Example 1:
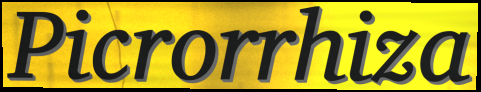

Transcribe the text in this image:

Picrorrhiza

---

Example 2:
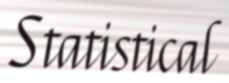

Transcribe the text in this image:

Statistical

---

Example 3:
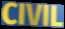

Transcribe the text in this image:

CIVIL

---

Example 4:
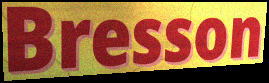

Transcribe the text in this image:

Bresson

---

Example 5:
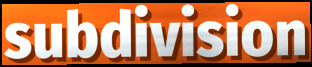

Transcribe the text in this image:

subdivision